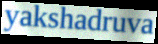
yakshadruva